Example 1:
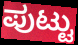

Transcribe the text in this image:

ಪುಟ್ಟು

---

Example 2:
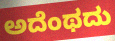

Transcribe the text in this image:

ಅದೆಂಥದು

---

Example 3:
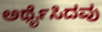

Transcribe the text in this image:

ಅರ್ಥೈಸಿದವು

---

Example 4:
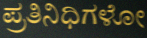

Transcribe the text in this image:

ಪ್ರತಿನಿಧಿಗಳೋ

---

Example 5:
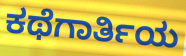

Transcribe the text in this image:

ಕಥೆಗಾರ್ತಿಯ